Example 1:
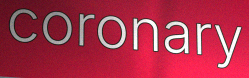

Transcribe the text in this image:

coronary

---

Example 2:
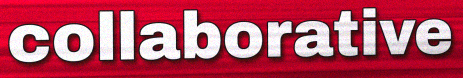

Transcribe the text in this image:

collaborative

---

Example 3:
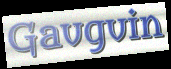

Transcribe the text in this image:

Gauguin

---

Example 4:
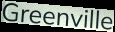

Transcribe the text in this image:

Greenville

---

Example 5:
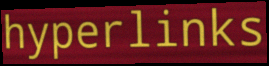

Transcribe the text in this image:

hyperlinks